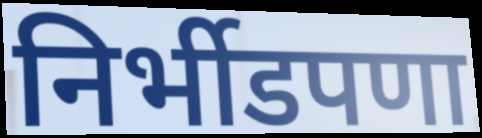
निर्भीडपणा